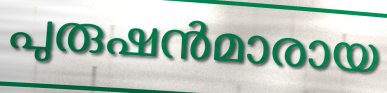
പുരുഷൻമാരായ